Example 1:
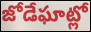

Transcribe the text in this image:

జోడేఘాట్లో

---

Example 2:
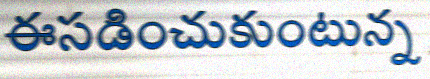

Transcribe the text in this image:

ఈసడించుకుంటున్న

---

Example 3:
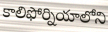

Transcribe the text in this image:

కాలిఫోర్నియాలోని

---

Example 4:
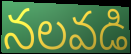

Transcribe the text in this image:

నలవడి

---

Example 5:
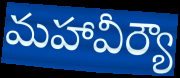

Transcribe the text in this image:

మహావీర్యౌ